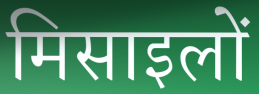
मिसाइलों